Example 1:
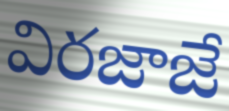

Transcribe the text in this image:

విరజాజే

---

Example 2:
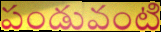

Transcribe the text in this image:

పండువంటి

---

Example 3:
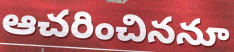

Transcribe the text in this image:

ఆచరించిననూ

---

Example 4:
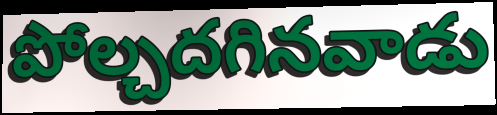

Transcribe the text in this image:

పోల్చదగినవాడు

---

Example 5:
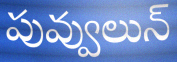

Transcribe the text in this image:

పువ్వులున్